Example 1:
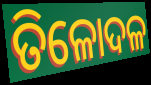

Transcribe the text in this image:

ତିଳୋଦଳ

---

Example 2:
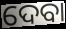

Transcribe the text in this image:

ଦେବା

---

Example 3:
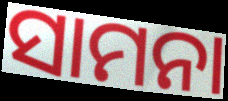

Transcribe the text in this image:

ସାମନା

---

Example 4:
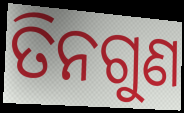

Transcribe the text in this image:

ତିନଗୁଣ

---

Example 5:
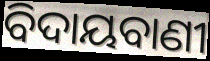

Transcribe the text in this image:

ବିଦାୟବାଣୀ